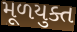
મૂળયુક્ત